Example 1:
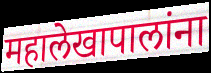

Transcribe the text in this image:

महालेखापालांना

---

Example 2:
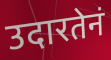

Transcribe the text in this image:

उदारतेनं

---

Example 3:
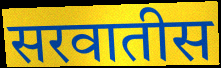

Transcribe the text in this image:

सरवातीस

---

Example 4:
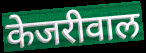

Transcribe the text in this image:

केजरीवाल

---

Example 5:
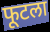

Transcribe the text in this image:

फूटला